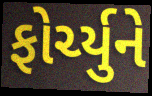
ફોર્ચ્યુને